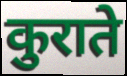
कुराते